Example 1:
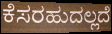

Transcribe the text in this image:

ಕೆಸರಹುದಲ್ಲದೆ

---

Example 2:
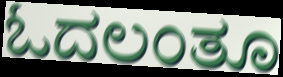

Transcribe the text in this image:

ಓದಲಂತೂ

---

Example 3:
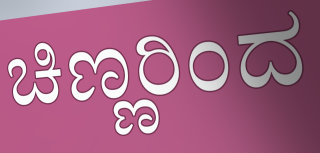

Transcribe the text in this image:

ಚಿಣ್ಣರಿಂದ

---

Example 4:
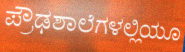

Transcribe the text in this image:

ಪ್ರೌಢಶಾಲೆಗಳಲ್ಲಿಯೂ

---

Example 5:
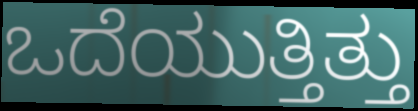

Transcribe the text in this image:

ಒದೆಯುತ್ತಿತ್ತು